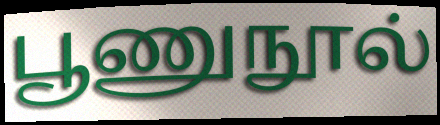
பூணுநூல்